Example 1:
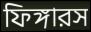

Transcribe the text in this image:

ফিঙ্গারস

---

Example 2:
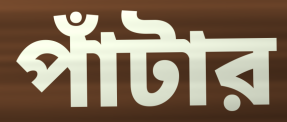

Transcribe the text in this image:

পাঁটার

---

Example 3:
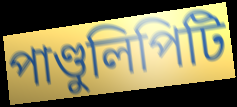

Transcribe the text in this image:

পাণ্ডুলিপিটি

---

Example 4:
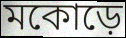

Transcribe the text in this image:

মকোড়ে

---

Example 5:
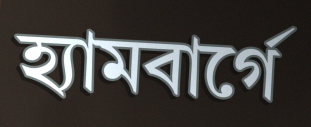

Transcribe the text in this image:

হ্যামবার্গে